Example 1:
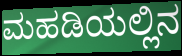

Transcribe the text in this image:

ಮಹಡಿಯಲ್ಲಿನ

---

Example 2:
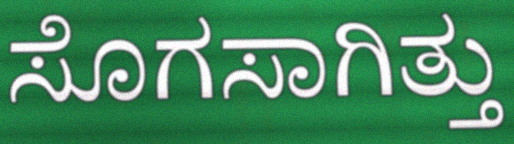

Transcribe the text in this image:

ಸೊಗಸಾಗಿತ್ತು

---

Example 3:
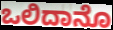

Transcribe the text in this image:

ಒಲಿದಾನೊ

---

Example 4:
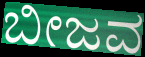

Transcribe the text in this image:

ಬೀಜವ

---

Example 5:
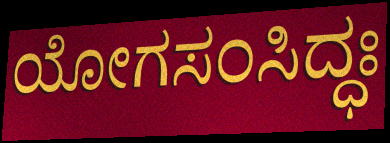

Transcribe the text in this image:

ಯೋಗಸಂಸಿದ್ಧಃ